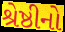
શ્રેષ્ઠીનો